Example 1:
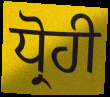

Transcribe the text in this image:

ਧ੍ਰੋਹੀ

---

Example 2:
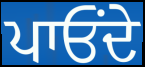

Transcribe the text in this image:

ਪਾਓਂਦੇ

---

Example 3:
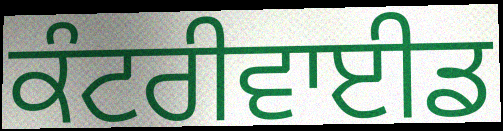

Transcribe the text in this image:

ਕੰਟਰੀਵਾਈਡ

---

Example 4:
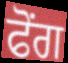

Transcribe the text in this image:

ਫੋਂਗ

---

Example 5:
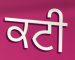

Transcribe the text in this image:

ਕਟੀ